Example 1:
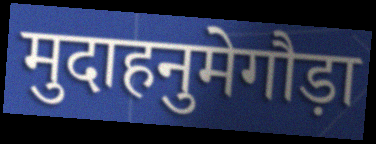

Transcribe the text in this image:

मुदाहनुमेगौड़ा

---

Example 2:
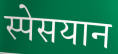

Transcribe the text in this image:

स्पेसयान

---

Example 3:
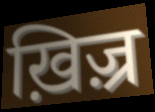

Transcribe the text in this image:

ख़िज़्र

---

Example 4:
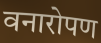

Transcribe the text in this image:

वनारोपण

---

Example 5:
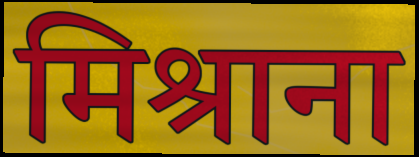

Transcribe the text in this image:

मिश्राना